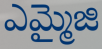
ఎమ్మైజి